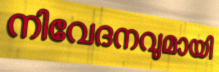
നിവേദനവുമായി